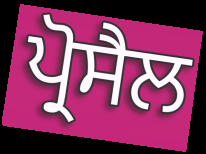
ਪ੍ਰੋਸੈਲ